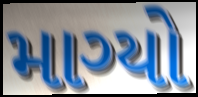
માગ્યો